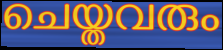
ചെയ്തവരും